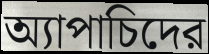
অ্যাপাচিদের